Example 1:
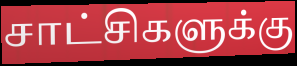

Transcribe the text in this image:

சாட்சிகளுக்கு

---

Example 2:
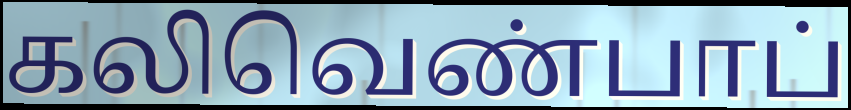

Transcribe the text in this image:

கலிவெண்பாப்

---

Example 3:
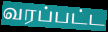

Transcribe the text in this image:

வரப்பட்ட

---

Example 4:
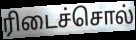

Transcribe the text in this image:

ரிடைச்சொல்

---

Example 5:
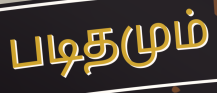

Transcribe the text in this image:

படிதமும்